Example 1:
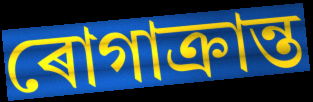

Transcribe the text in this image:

ৰোগাক্ৰান্ত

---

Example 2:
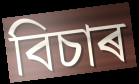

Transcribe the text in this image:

বিচাৰ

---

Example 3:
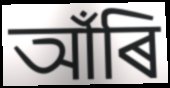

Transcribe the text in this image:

আঁৰি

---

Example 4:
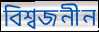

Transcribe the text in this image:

বিশ্বজনীন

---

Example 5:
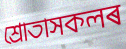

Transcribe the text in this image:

শ্ৰোতাসকলৰ